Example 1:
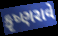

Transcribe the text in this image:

કૃષ્ણરાવે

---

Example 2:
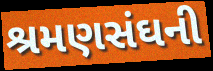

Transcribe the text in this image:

શ્રમણસંઘની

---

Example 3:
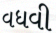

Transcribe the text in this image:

વધવી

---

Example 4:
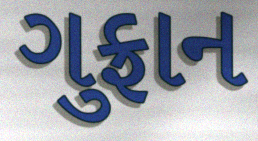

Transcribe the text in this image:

ગુફ્રાન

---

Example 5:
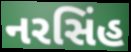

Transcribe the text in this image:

નરસિંહ